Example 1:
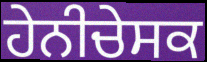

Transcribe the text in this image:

ਹੇਨੀਚੇਸਕ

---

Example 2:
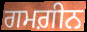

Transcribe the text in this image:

ਗਮਗ਼ੀਨ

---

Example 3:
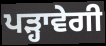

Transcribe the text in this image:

ਪੜ੍ਹਾਵੇਗੀ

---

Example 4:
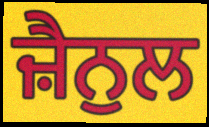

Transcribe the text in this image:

ਜ਼ੈਨੁਲ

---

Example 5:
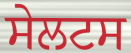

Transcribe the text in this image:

ਸੇਲਟਸ